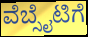
ವೆಬ್ಸೈಟಿಗೆ